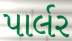
પાર્લર